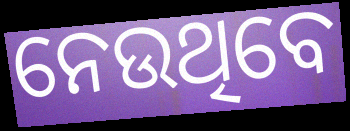
ନେଉଥିବେ